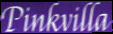
Pinkvilla